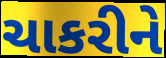
ચાકરીને